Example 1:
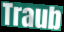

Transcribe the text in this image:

Traub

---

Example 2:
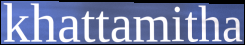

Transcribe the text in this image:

khattamitha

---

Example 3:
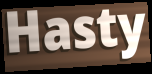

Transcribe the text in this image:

Hasty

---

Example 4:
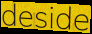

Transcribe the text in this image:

deside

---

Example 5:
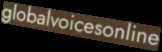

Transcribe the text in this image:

globalvoicesonline